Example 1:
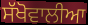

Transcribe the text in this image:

ਸੱਖੋਵਾਲੀਆ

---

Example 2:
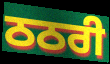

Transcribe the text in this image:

ਠਠਰੀ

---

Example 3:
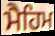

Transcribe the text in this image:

ਮੈਹਿਮ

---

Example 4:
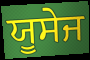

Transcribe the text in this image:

ਯੂਸੇਜ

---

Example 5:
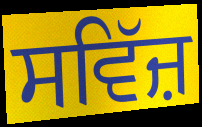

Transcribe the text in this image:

ਸਵਿੱਜ਼